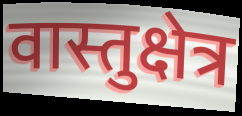
वास्तुक्षेत्र